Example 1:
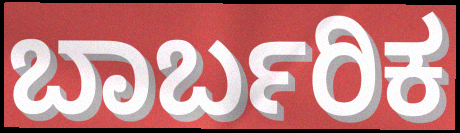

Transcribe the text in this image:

ಬಾರ್ಬರಿಕ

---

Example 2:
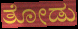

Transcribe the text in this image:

ತೋಡು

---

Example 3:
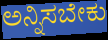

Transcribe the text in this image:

ಅನ್ನಿಸಬೇಕು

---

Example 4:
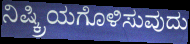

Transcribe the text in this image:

ನಿಷ್ಕ್ರಿಯಗೊಳಿಸುವುದು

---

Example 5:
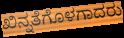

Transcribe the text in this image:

ಖಿನ್ನತೆಗೊಳಗಾದರು